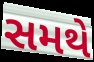
સમથે